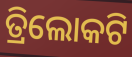
ତ୍ରିଲୋକଟି